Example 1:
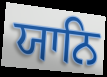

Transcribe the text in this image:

ਯਾਨਿ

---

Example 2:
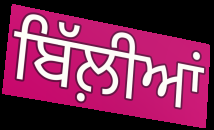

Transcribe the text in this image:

ਬਿੱਲ਼ੀਆਂ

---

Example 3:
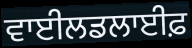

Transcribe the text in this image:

ਵਾਈਲਡਲਾਈਫ਼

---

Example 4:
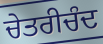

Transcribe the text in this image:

ਚੇਤਰੀਚੰਦ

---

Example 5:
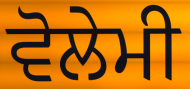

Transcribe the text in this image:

ਵੋਲੇਮੀ